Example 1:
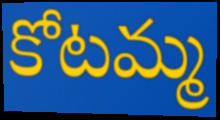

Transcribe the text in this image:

కోటమ్మ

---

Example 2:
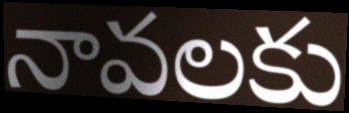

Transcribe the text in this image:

నావలకు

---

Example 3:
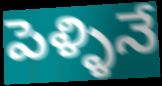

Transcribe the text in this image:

పెళ్ళినే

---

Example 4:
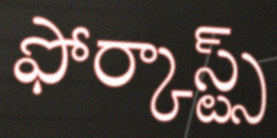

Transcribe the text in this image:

ఫోర్కాస్ట్స్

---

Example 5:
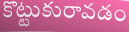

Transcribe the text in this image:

కొట్టుకురావడం